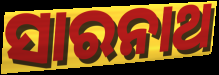
ସାରନାଥ